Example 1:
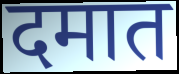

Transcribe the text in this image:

दमात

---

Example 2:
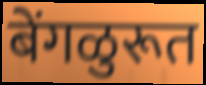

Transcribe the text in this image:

बेंगळुरूत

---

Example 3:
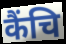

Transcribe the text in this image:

कैंचि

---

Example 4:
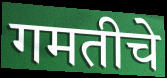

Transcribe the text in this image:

गमतीचे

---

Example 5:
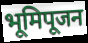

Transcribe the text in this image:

भूमिपूजन